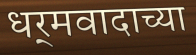
धर्मवादाच्या